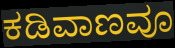
ಕಡಿವಾಣವೂ